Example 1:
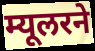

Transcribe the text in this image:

म्यूलरने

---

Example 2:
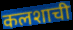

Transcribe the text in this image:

कलशाची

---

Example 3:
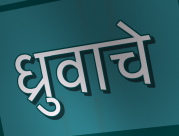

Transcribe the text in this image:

ध्रुवाचे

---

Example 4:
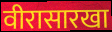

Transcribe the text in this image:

वीरासारखा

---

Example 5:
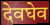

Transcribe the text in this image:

देवघेव